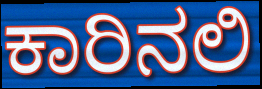
ಕಾರಿನಲಿ